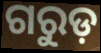
ଗରୁଡ଼